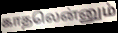
காதலென்னும்